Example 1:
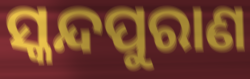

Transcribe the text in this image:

ସ୍କନ୍ଦପୁରାଣ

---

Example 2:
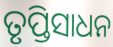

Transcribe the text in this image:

ତୃପ୍ତିସାଧନ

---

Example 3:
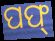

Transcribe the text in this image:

ପଫ୍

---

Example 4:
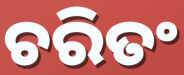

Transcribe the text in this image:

ଚରିତଂ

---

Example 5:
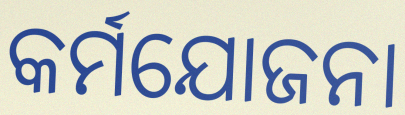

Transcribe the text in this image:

କର୍ମଯୋଜନା